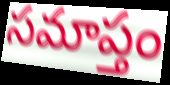
సమాప్తం